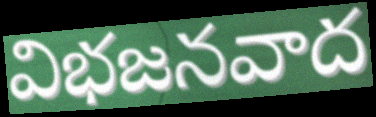
విభజనవాద